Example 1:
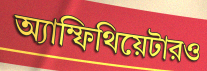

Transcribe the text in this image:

অ্যাম্ফিথিয়েটারও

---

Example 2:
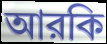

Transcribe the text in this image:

আরকি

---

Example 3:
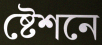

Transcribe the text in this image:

ষ্টেশনে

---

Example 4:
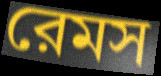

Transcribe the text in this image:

রেমস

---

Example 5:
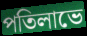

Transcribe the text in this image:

পতিলাভে